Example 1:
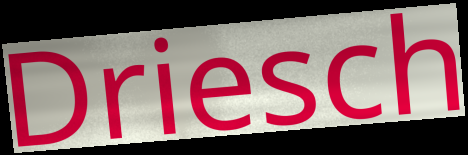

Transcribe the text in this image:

Driesch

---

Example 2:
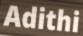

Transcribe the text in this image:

Adithi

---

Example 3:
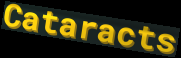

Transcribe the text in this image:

Cataracts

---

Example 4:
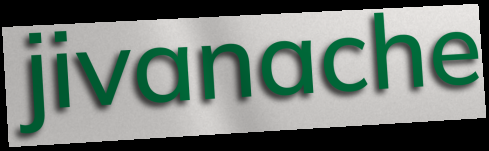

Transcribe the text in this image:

jivanache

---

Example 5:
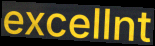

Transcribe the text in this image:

excellnt